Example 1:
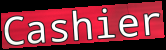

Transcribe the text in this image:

Cashier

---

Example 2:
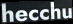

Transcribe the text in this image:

hecchu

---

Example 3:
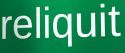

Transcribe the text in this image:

reliquit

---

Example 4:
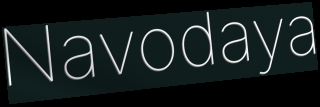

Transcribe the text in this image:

Navodaya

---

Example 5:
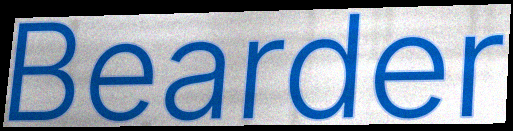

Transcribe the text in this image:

Bearder